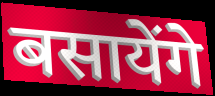
बसायेंगे